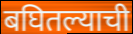
बघितल्याची